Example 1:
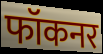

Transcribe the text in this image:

फॉकनर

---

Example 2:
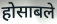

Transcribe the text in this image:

होसाबले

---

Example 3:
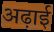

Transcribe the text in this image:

अढ़ाई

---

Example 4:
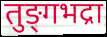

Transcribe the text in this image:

तुङ्गभद्रा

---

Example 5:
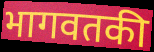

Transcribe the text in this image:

भागवतकी